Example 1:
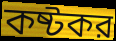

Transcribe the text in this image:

কষ্টকর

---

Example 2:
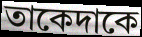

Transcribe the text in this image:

তাকেদাকে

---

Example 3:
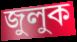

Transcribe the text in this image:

জুলুক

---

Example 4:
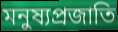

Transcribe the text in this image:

মনুষ্যপ্রজাতি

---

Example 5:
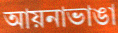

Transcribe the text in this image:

আয়নাভাঙা